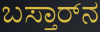
ಬಸ್ತಾರ್‌ನ